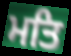
ਮਤਿ